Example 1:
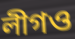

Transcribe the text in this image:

লীগও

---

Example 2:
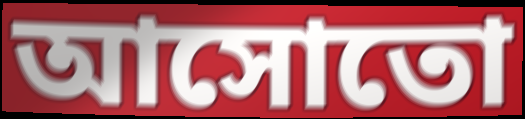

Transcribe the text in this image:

আসোতো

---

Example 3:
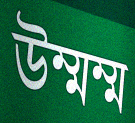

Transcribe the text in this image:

উম্মম্ম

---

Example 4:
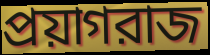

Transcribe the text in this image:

প্রয়াগরাজ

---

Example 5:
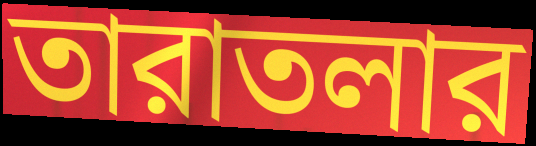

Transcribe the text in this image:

তারাতলার